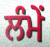
ਲੰਮੇਂ